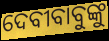
ଦେବୀବାବୁଙ୍କୁ